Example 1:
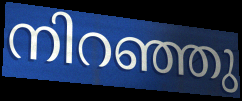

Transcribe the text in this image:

നിറഞ്ഞു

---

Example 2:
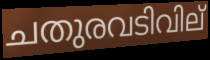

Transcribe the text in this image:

ചതുരവടിവില്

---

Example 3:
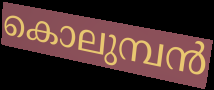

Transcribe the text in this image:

കൊലുമ്പൻ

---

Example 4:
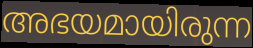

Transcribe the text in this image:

അഭയമായിരുന്ന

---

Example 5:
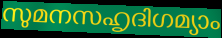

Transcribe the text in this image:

സുമനസഹൃദിഗമ്യാം